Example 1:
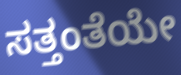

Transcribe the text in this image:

ಸತ್ತಂತೆಯೇ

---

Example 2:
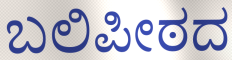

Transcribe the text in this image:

ಬಲಿಪೀಠದ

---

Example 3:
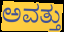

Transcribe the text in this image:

ಅವತ್ತು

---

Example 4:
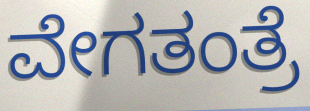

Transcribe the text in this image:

ವೇಗತಂತ್ರೆ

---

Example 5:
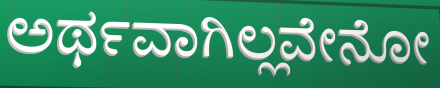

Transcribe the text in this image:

ಅರ್ಥವಾಗಿಲ್ಲವೇನೋ